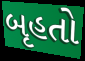
બૃહતો